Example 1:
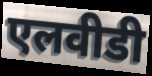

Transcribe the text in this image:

एलवीडी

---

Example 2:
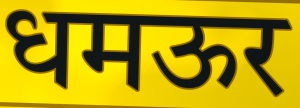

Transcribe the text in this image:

धमऊर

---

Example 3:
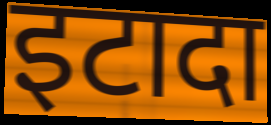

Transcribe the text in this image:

इटादा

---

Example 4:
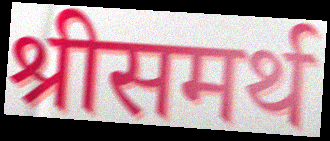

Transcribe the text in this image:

श्रीसमर्थ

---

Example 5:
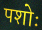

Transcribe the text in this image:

पशोः